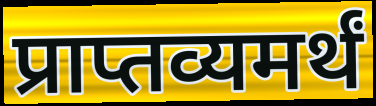
प्राप्तव्यमर्थं